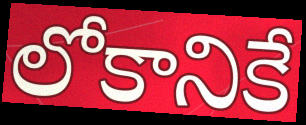
లోకానికే